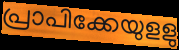
പ്രാപിക്കേയുളളു